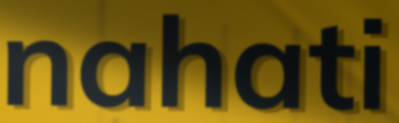
nahati